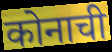
कोनाची